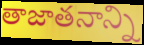
తాజాతనాన్ని